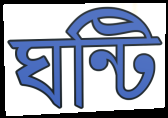
ঘন্টি